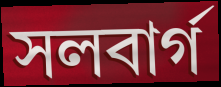
সলবার্গ